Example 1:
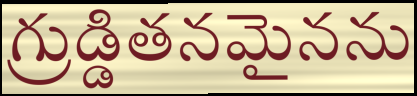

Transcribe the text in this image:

గ్రుడ్డితనమైనను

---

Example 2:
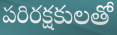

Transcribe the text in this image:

పరిరక్షకులతో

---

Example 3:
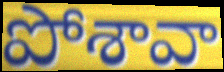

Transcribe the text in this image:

పోశావా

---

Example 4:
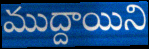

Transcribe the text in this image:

ముద్దాయిని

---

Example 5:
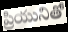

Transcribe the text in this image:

ప్రియునితో